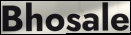
Bhosale